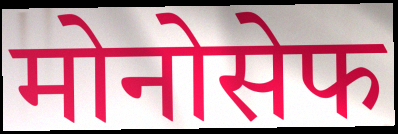
मोनोसेफ